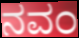
ನವಂ